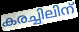
കരച്ചിലിന്